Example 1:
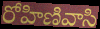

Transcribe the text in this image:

రోహిణివాసి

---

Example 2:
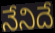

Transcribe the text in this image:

నేనిదే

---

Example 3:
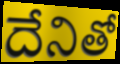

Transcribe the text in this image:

దేనితో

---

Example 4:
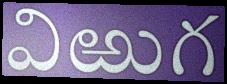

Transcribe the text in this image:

విఱుగ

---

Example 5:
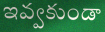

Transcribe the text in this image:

ఇవ్వకుండా